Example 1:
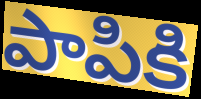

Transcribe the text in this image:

పాపికి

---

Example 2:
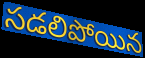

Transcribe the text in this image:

సడలిపోయిన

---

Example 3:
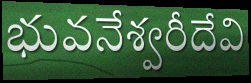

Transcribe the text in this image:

భువనేశ్వరీదేవి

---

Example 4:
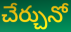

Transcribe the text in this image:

చేర్చునో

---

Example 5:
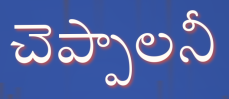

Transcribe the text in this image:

చెప్పాలనీ